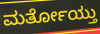
ಮರ್ತೋಯ್ತು